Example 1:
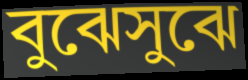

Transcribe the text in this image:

বুঝেসুঝে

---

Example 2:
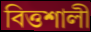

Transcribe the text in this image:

বিত্তশালী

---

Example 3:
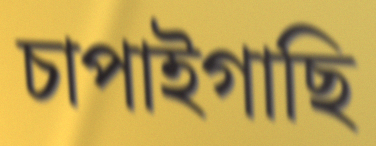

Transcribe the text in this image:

চাপাইগাছি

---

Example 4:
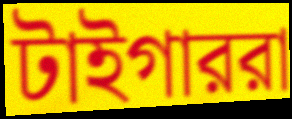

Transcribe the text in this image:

টাইগাররা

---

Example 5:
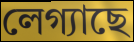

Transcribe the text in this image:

লেগ্যাছে